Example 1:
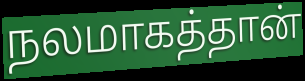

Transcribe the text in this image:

நலமாகத்தான்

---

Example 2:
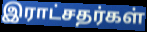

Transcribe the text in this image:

இராட்சதர்கள்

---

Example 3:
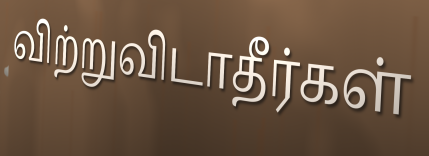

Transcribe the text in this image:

விற்றுவிடாதீர்கள்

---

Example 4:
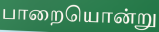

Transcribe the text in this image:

பாறையொன்று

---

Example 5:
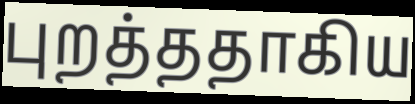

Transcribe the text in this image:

புறத்ததாகிய